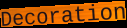
Decoration